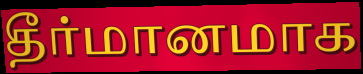
தீர்மானமாக